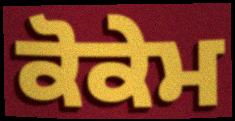
ਕੋਕੇਮ